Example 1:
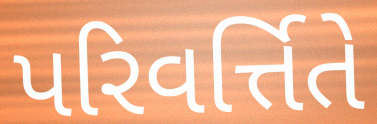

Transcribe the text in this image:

પરિવર્ત્તિતે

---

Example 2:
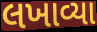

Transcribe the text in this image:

લખાવ્યા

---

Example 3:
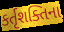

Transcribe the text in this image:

કર્તૃશક્તિના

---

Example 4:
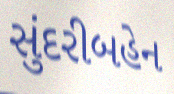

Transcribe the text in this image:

સુંદરીબહેન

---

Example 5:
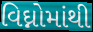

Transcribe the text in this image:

વિઘ્નોમાંથી